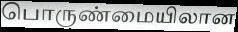
பொருண்மையிலான